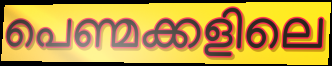
പെണ്മക്കളിലെ